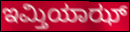
ಇಮ್ತಿಯಾಝ್